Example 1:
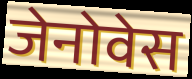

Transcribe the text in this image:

जेनोवेस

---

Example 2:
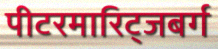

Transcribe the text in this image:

पीटरमारिट्जबर्ग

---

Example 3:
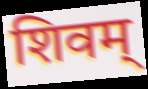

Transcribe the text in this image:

शिवम्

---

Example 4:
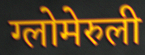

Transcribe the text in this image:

ग्लोमेरुली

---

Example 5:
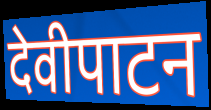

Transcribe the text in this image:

देवीपाटन